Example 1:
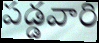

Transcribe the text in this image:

పడ్డవారి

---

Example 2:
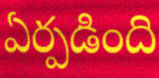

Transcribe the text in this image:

ఏర్పడింది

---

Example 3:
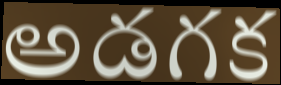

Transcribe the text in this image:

అడగక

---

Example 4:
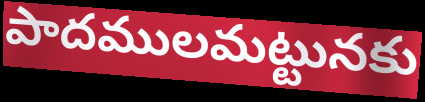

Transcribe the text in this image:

పాదములమట్టునకు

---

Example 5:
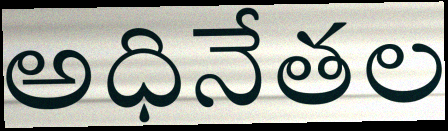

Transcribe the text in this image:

అధినేతల